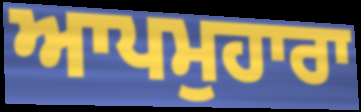
ਆਪਮੁਹਾਰਾ